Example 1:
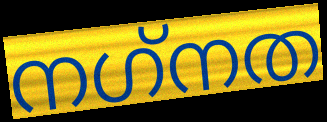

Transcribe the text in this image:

നഗ്‌നത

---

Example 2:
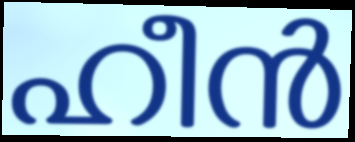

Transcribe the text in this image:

ഹീൻ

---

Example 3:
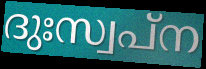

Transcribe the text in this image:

ദുഃസ്വപ്ന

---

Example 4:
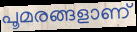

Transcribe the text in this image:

പൂമരങ്ങളാണ്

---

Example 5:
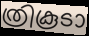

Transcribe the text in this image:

ത്രികൂടാ